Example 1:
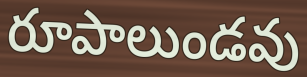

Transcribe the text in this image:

రూపాలుండవు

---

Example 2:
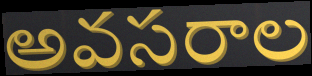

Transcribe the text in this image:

అవసరాల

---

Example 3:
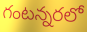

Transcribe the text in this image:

గంటన్నరలో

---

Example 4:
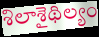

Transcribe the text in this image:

శిలాశైథిల్యం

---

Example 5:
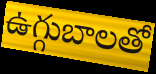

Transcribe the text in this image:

ఉగ్గుబాలతో